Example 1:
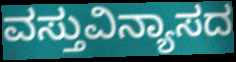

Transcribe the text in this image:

ವಸ್ತುವಿನ್ಯಾಸದ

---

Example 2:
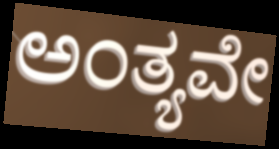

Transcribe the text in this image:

ಅಂತ್ಯವೇ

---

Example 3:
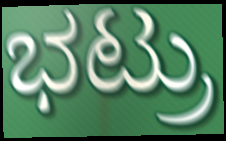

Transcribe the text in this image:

ಭಟ್ರು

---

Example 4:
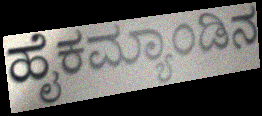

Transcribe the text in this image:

ಹೈಕಮ್ಯಾಂಡಿನ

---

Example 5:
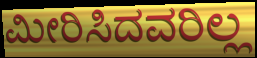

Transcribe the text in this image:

ಮೀರಿಸಿದವರಿಲ್ಲ